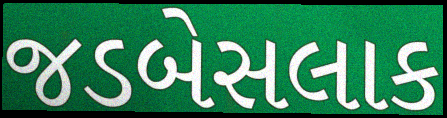
જડબેસલાક